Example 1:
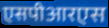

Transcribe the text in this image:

एसपीआरएस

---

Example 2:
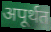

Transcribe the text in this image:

अपूर्थत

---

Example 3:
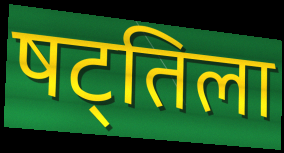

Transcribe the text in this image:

षट्तिला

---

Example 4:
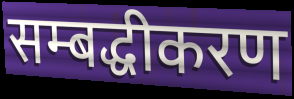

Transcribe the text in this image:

सम्बद्धीकरण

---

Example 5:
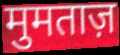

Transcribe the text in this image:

मुमताज़